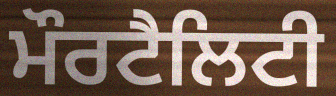
ਮੌਰਟੈਲਿਟੀ